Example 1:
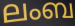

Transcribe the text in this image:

ലംബ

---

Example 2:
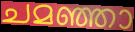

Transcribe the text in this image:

ചമഞ്ഞാ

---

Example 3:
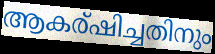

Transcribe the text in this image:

ആകര്ഷിച്ചതിനും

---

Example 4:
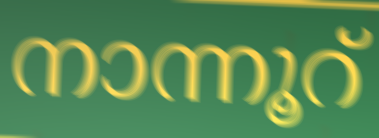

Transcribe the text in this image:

നാന്നൂറ്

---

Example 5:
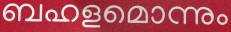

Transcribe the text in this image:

ബഹളമൊന്നും